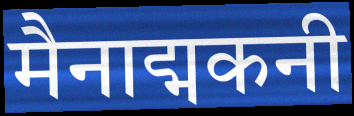
मैनाद्मकनी